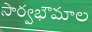
సార్వభౌమాల